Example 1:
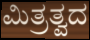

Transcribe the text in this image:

ಮಿತ್ರತ್ವದ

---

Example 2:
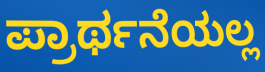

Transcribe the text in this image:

ಪ್ರಾರ್ಥನೆಯಲ್ಲ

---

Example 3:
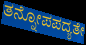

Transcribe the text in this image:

ತನ್ನೋಪಪದ್ಯತೇ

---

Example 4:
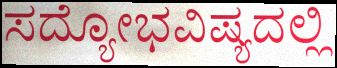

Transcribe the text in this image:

ಸದ್ಯೋಭವಿಷ್ಯದಲ್ಲಿ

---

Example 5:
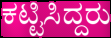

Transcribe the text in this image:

ಕಟ್ಟಿಸಿದ್ದರು